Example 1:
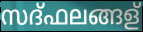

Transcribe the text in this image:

സദ്ഫലങ്ങള്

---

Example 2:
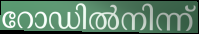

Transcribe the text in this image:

റോഡിൽനിന്ന്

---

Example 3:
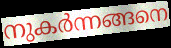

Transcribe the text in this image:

നുകർന്നങ്ങനെ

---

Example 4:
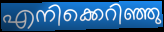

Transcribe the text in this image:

എനിക്കെറിഞ്ഞു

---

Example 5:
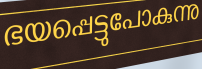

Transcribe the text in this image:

ഭയപ്പെട്ടുപോകുന്നു